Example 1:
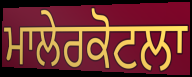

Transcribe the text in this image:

ਮਾਲੇਰਕੋਟਲਾ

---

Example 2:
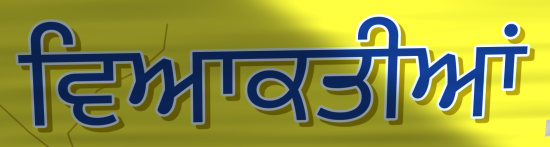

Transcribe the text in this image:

ਵਿਆਕਤੀਆਂ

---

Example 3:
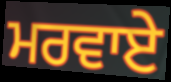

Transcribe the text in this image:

ਮਰਵਾਏ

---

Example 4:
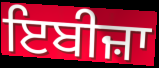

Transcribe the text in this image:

ਇਬੀਜ਼ਾ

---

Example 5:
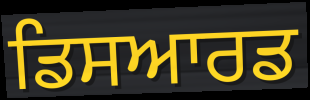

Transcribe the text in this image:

ਡਿਸਆਰਡ